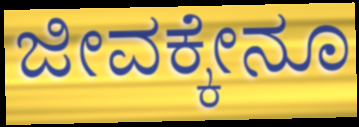
ಜೀವಕ್ಕೇನೂ